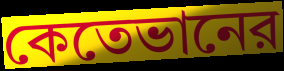
কেতেভানের